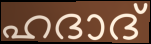
ഹദാദ്